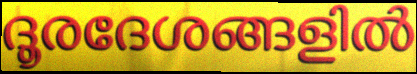
ദൂരദേശങ്ങളിൽ